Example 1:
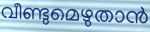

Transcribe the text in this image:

വീണ്ടുമെഴുതാൻ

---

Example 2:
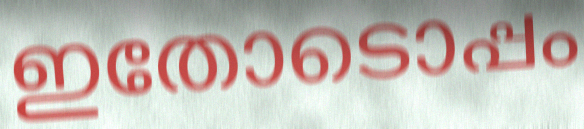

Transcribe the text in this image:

ഇതോടൊപ്പം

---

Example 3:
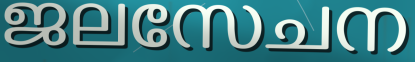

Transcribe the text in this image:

ജലസേചന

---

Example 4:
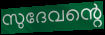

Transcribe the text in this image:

സുദേവന്റെ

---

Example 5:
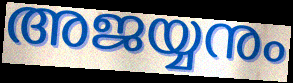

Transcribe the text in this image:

അജയ്യനും